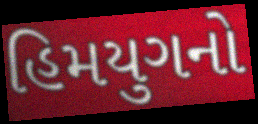
હિમયુગનો